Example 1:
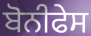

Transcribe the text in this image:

ਬੋਨੀਫੇਸ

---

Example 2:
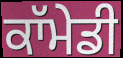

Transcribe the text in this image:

ਕਾੱਮੇਡੀ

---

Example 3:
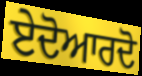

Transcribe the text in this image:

ਏਦੋਆਰਦੋ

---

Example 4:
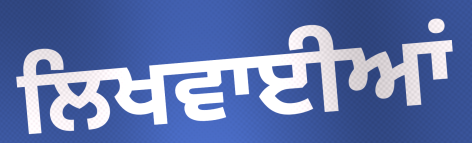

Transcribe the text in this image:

ਲਿਖਵਾਈਆਂ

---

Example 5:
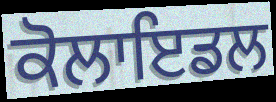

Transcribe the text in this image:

ਕੋਲਾਇਡਲ